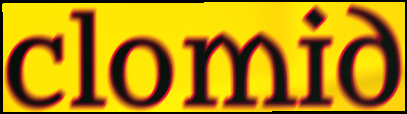
clomid